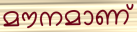
മൗനമാണ്